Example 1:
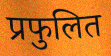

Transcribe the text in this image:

प्रफुलित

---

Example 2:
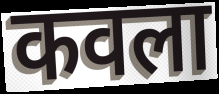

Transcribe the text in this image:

कवला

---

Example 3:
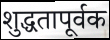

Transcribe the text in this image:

शुद्धतापूर्वक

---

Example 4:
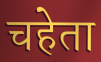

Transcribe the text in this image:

चहेता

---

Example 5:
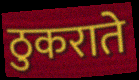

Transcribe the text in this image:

ठुकराते